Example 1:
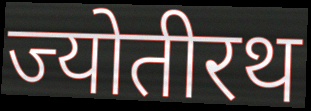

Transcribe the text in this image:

ज्योतीरथ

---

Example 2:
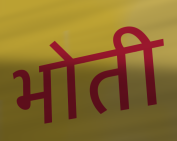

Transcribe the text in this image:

भोती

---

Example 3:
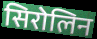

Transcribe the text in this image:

सिरोलिन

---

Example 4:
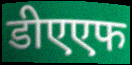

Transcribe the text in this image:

डीएएफ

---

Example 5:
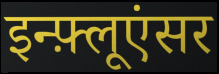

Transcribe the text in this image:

इन्फ़्लूएंसर